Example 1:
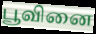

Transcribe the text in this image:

பூவினை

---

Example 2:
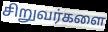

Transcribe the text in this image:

சிறுவர்களை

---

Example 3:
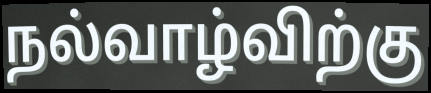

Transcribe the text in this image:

நல்வாழ்விற்கு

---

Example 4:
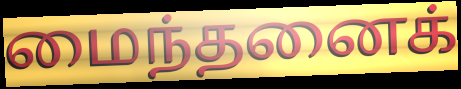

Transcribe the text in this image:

மைந்தனைக்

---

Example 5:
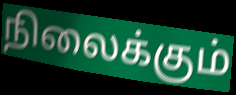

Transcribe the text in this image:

நிலைக்கும்